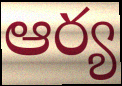
ఆర్య